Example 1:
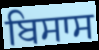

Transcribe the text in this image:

ਬਿਸਾਸ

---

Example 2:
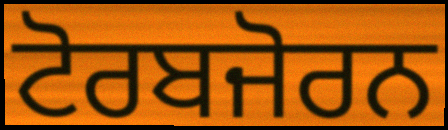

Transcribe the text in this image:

ਟੋਰਬਜੋਰਨ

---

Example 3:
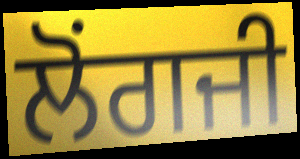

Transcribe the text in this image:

ਲੋਂਗਜੀ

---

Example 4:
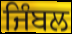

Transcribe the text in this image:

ਜਿੰਬਲ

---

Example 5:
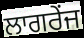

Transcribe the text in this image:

ਲਾਗਰੇਂਜ